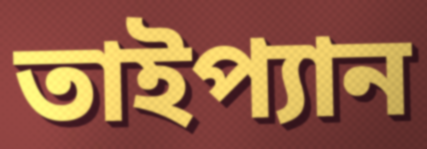
তাইপ্যান